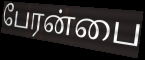
பேரன்பை